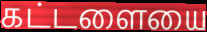
கட்டளையை